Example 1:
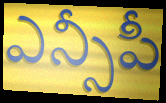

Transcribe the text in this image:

ఎన్సీపీ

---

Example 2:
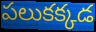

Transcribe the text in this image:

పలుకక్కడ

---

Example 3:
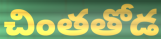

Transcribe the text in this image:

చింతతోడ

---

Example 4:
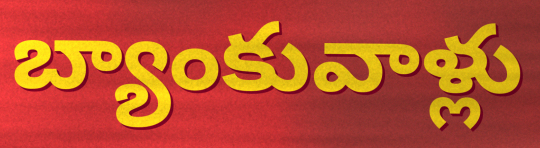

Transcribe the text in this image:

బ్యాంకువాళ్లు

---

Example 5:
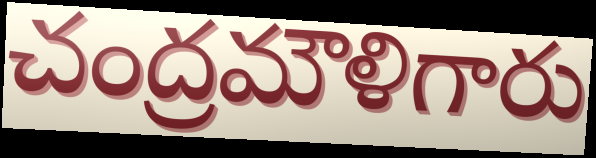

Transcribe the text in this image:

చంద్రమౌళిగారు